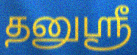
தனுஸ்ரீ